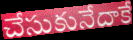
చేసుకునేదాకే